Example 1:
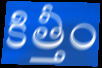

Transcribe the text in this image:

కిత్తీం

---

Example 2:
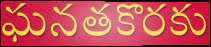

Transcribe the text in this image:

ఘనతకొరకు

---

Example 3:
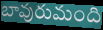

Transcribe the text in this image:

బావురుమంది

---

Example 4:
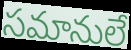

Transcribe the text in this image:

సమానులే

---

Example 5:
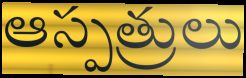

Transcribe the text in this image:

ఆస్పత్రులు